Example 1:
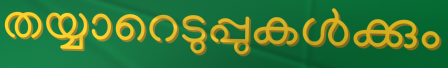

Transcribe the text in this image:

തയ്യാറെടുപ്പുകൾക്കും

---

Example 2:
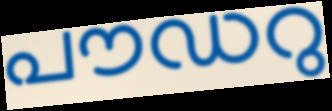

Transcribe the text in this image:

പൗഡറു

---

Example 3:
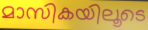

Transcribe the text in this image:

മാസികയിലൂടെ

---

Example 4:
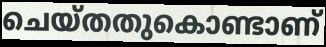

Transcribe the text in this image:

ചെയ്തതുകൊണ്ടാണ്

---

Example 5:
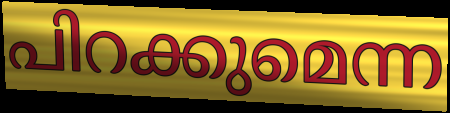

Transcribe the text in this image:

പിറക്കുമെന്ന